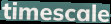
timescale